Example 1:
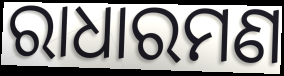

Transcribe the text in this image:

ରାଧାରମଣ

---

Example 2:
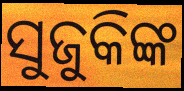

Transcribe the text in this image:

ସୁଜୁକିଙ୍କ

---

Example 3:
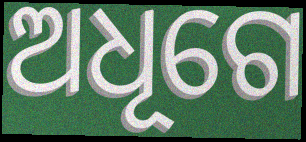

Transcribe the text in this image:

ଅଧୂଗେ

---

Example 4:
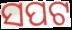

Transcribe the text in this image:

ସପଟ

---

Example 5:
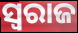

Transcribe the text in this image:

ସ୍ବରାଜ